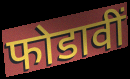
फोडावीं